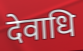
देवाधि